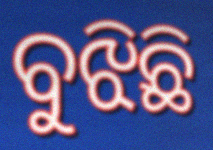
ବୁଝିଛି